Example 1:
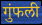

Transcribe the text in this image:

गुंफली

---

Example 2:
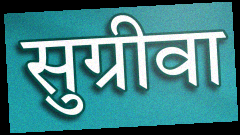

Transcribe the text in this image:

सुग्रीवा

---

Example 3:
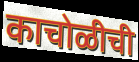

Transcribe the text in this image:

काचोळीची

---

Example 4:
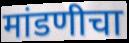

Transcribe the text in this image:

मांडणीचा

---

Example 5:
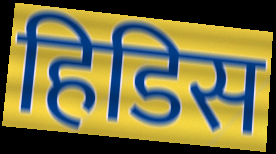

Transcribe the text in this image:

हिडिस